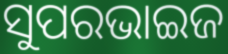
ସୁପରଭାଇଜ